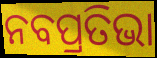
ନବପ୍ରତିଭା